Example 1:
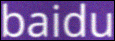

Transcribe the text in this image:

baidu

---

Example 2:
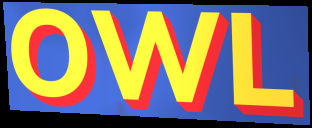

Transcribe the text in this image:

OWL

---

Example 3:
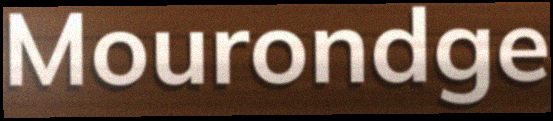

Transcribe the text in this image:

Mourondge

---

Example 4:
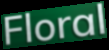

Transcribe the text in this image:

Floral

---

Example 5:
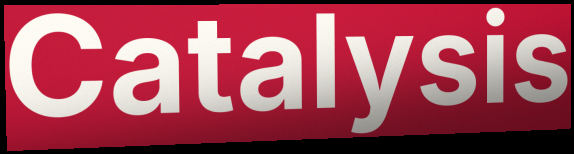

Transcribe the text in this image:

Catalysis